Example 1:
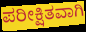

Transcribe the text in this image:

ಪರೀಕ್ಷಿತವಾಗಿ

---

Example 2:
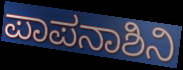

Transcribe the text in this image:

ಪಾಪನಾಶಿನಿ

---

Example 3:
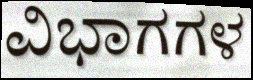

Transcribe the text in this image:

ವಿಭಾಗಗಳ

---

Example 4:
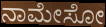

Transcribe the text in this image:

ನಾಮೇಸೋ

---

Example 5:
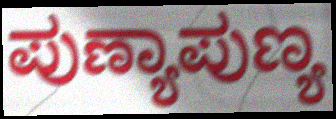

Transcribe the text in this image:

ಪುಣ್ಯಾಪುಣ್ಯ